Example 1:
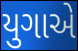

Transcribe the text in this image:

યુગાએ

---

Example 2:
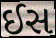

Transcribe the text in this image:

ઈસ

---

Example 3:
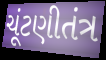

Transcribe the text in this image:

ચૂંટણીતંત્ર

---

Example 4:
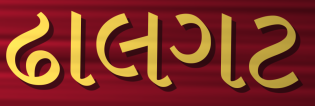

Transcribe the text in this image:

ઢાલગટ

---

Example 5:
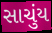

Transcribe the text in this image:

સાચુંય